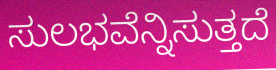
ಸುಲಭವೆನ್ನಿಸುತ್ತದೆ